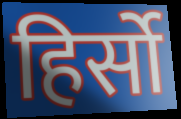
हिर्सो